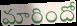
మారిందో